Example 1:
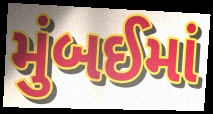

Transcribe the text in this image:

મુંબઈમાં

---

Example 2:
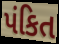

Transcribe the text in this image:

પંકિત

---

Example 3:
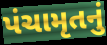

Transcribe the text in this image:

પંચામૃતનું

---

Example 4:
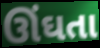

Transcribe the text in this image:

ઊંઘતા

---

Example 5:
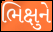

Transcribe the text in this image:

ભિક્ષુને